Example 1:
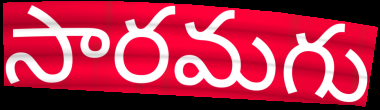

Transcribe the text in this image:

సారమగు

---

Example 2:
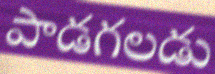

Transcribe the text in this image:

పాడగలడు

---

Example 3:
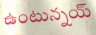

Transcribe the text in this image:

ఉంటున్నయ్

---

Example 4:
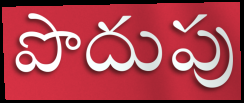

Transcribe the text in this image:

పొదుపు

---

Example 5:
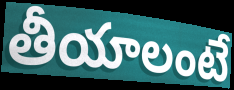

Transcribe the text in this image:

తీయాలంటే